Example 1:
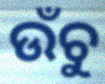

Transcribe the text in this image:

ଉଁଚୁ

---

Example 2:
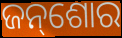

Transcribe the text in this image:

ଜନ୍‌ଶୋର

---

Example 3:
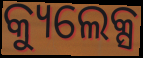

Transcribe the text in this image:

କ୍ୟୁଲେକ୍ସ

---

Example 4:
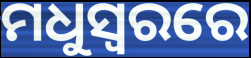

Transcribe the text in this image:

ମଧୁସ୍ୱରରେ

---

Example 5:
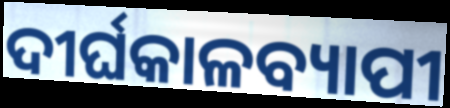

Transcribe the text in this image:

ଦୀର୍ଘକାଳବ୍ୟାପୀ